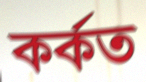
কৰ্কত